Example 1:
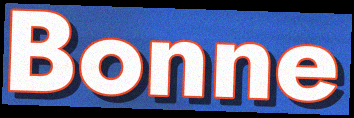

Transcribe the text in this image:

Bonne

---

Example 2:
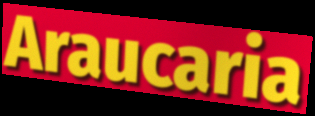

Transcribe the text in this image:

Araucaria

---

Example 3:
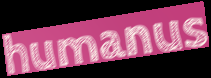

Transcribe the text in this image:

humanus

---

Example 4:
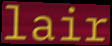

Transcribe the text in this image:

lair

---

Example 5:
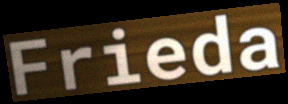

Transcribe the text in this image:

Frieda